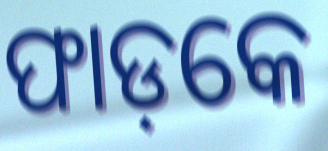
ଫାଡ଼କେ